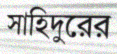
সাহিদুরের